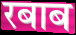
रबाब